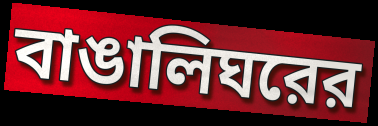
বাঙালিঘরের